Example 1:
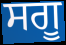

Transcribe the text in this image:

ਸਗੂ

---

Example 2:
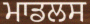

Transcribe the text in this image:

ਮਾਡਲਸ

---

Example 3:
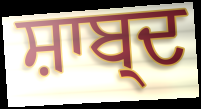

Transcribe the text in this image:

ਸ਼ਾਬ੍ਦ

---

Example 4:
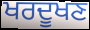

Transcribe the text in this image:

ਖਰਦੂਖਣ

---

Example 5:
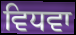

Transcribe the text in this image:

ਵਿਧਵਾ